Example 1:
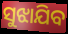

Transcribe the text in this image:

ସୁଝାଯିବ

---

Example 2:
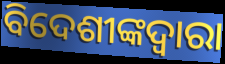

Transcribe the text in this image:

ବିଦେଶୀଙ୍କଦ୍ୱାରା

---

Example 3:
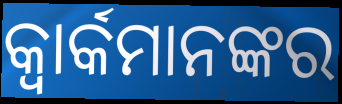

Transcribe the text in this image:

କ୍ୱାର୍କମାନଙ୍କର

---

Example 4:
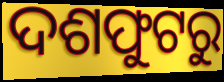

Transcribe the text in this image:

ଦଶଫୁଟରୁ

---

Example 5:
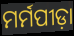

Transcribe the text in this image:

ମର୍ମପୀଡ଼ା